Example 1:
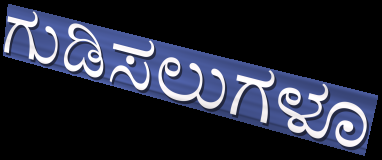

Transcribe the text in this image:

ಗುಡಿಸಲುಗಳೂ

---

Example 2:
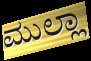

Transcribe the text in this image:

ಮುಲ್ಲಾ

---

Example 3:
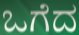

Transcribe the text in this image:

ಒಗೆದ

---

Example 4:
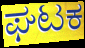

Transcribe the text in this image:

ಘಟಕ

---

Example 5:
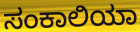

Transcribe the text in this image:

ಸಂಕಾಲಿಯಾ